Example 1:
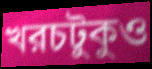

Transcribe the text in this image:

খরচটুকুও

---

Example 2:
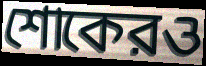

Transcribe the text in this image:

শোকেরও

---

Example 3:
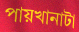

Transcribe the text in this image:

পায়খানাটা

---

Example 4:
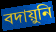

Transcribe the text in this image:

বদায়ুনি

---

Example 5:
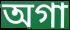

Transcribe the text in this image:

অগা